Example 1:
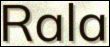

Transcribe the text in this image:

Rala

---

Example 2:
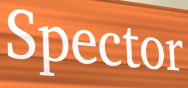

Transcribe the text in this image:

Spector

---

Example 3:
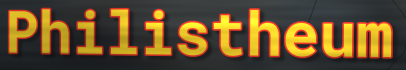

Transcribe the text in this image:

Philistheum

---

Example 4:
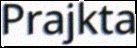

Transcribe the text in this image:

Prajkta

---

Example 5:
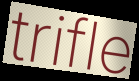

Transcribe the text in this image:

trifle